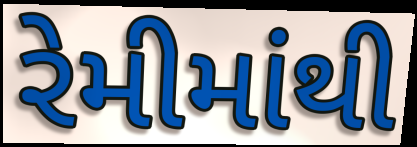
રેમીમાંથી